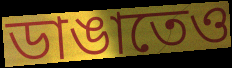
ডাঙাতেও